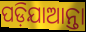
ପଡ଼ିଯାଆନ୍ତା